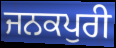
ਜਨਕਪੁਰੀ